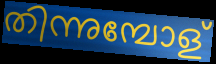
തിന്നുമ്പോള്